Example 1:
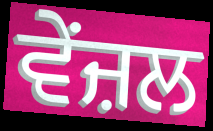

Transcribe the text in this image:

ਵੇਂਜ਼ਲ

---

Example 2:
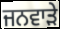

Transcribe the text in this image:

ਜਨਵਾੜੇ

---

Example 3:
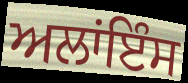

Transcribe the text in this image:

ਅਲਾਂਇੰਸ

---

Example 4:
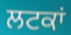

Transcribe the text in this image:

ਲਟਕਾਂ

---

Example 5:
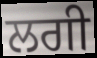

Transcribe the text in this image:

ਲਗੀ